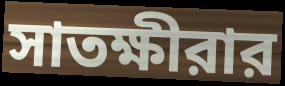
সাতক্ষীরার